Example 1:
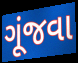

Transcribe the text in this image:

ગૂંજવા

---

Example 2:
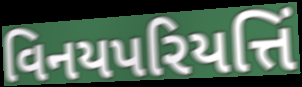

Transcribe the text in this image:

વિનયપરિયત્તિં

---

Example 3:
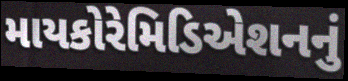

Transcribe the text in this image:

માયકોરેમિડિએશનનું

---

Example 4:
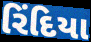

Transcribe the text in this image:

રિંદિયા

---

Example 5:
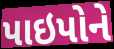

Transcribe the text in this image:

પાઇપોને